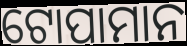
ଟୋପାମାନ